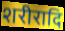
शरीरादि